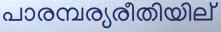
പാരമ്പര്യരീതിയില്